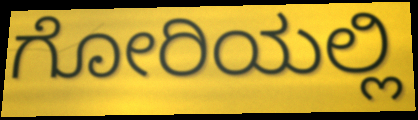
ಗೋರಿಯಲ್ಲಿ